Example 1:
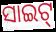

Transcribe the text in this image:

ସାଇଟ୍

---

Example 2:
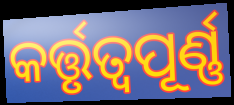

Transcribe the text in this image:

କର୍ତ୍ତୃତ୍ୱପୂର୍ଣ୍ଣ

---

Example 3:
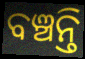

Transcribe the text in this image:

ବଞ୍ଚନ୍ତି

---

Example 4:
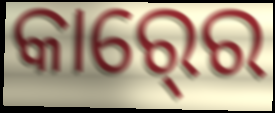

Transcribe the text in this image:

କାର୍‍ରେ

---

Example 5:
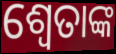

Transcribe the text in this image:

ଶ୍ଵେତାଙ୍କ